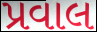
પ્રવાલ